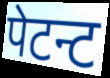
पेटन्ट